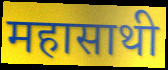
महासाथी